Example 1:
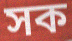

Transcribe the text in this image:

সক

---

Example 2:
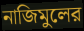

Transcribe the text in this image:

নাজিমুলের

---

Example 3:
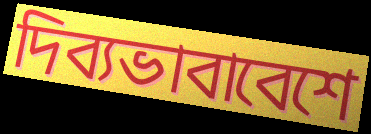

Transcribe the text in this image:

দিব্যভাবাবেশে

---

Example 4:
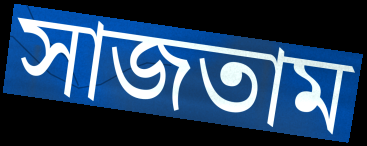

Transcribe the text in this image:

সাজতাম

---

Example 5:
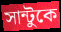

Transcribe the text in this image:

সান্টুকে